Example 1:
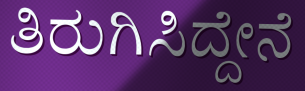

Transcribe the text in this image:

ತಿರುಗಿಸಿದ್ದೇನೆ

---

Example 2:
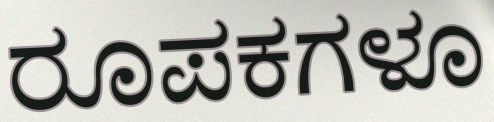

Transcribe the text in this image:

ರೂಪಕಗಳೂ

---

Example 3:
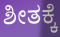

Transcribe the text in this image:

ಶೀತಕ್ಕೆ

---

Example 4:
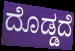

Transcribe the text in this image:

ದೊಡ್ಡದೆ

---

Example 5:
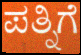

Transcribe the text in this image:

ಪತ್ನಿಗೆ